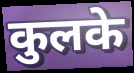
कुलके